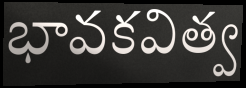
భావకవిత్వ